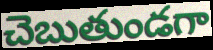
చెబుతుండగా